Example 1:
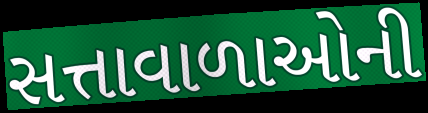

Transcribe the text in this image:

સત્તાવાળાઓની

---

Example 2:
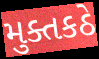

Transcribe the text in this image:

મુક્તકઠે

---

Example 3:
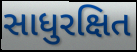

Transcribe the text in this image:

સાધુરક્ષિત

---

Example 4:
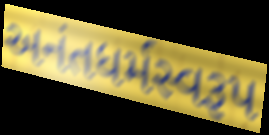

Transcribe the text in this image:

અનંતધર્મસ્વરૂપ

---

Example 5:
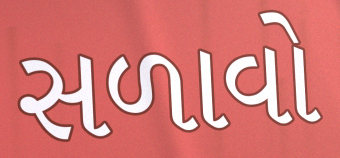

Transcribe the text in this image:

સળાવો